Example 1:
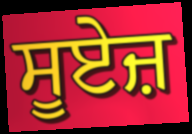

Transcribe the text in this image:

ਸੂਏਜ਼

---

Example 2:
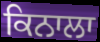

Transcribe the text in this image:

ਕਿਨਾਲਾ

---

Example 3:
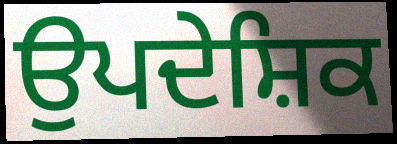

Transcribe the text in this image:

ਉਪਦੇਸ਼ਿਕ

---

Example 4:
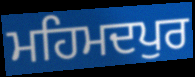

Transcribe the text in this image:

ਮਹਿਮਦਪੁਰ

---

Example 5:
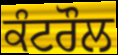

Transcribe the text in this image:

ਕੰਟਰੌਲ